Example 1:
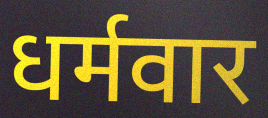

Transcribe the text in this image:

धर्मवार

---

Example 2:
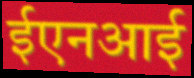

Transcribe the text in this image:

ईएनआई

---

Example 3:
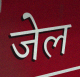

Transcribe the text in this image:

जेल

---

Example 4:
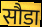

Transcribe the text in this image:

सौडा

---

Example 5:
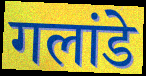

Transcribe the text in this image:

गलांडे